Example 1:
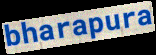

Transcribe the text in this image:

bharapura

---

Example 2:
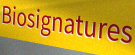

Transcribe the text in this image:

Biosignatures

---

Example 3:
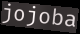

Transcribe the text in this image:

jojoba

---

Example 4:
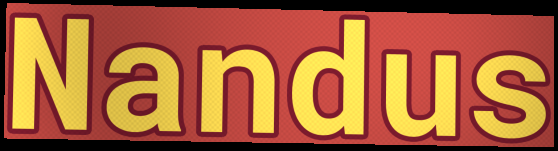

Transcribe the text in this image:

Nandus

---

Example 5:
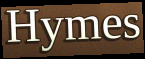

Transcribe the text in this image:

Hymes